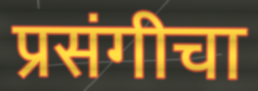
प्रसंगीचा